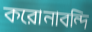
করোনাবন্দি